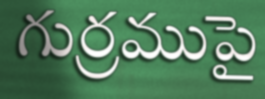
గుర్రముపై